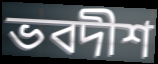
ভবদীশ